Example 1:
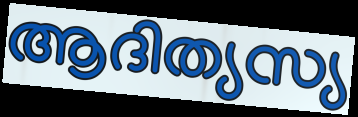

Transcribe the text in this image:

ആദിത്യസ്യ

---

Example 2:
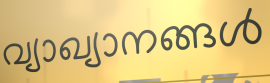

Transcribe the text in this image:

വ്യാഖ്യാനങ്ങൾ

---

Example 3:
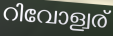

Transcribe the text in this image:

റിവോള്വര്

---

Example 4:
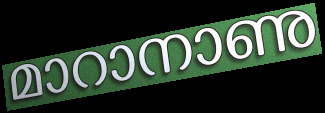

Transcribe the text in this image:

മാറാനാണു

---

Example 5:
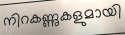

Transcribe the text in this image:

നിറകണ്ണുകളുമായി